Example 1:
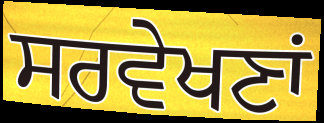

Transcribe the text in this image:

ਸਰਵੇਖਣਾਂ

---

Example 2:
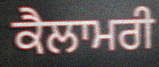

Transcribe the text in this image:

ਕੈਲਾਮਰੀ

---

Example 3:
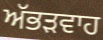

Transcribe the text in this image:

ਅੱਭੜਵਾਹ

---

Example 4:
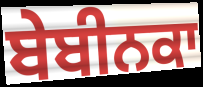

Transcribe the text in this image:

ਬੇਬੀਨਕਾ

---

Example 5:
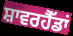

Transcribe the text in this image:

ਸ਼ਾਵਰਹੈੱਡਾਂ